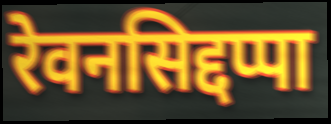
रेवनसिद्दप्पा